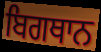
ਬਿਗਥਾਨ